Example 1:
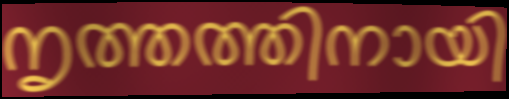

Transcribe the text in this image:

നൃത്തത്തിനായി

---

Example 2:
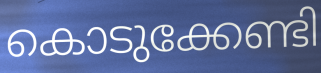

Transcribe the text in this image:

കൊടുക്കേണ്ടി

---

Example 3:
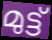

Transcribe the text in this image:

മുട്ട്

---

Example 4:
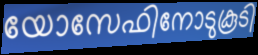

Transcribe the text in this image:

യോസേഫിനോടുകൂടി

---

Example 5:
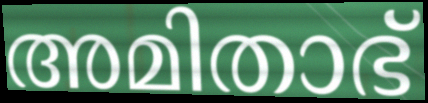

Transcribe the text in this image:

അമിതാഭ്